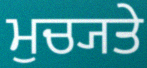
ਮੁਚ੍ਯਤੇ